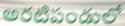
అరటిపండులో